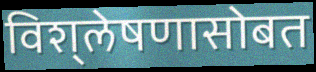
विश्लेषणासोबत